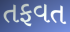
તફવત